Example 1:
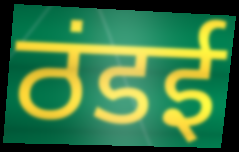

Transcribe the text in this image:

ठंडई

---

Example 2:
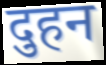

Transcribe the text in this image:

दुहन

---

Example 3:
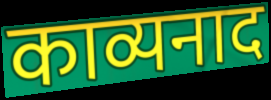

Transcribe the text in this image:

काव्यनाद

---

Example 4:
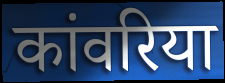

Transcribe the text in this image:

कांवरिया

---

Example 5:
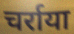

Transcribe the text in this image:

चर्राया